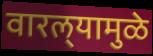
वारल्यामुळे